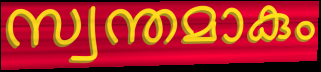
സ്വന്തമാകും